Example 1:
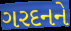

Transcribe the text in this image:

ગરદનને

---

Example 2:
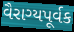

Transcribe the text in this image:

વૈરાગ્યપૂર્વક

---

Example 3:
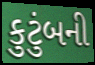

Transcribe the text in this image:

કુટુંબની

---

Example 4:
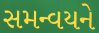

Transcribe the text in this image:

સમન્વયને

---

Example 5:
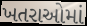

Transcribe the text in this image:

ખતરાઓમાં